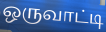
ஒருவாட்டி